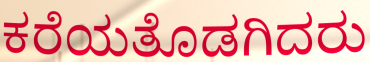
ಕರೆಯತೊಡಗಿದರು